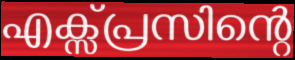
എക്സ്പ്രസിന്റെ